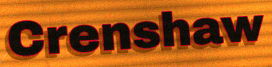
Crenshaw